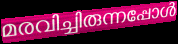
മരവിച്ചിരുന്നപ്പോൾ